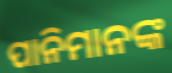
ପାନିମାନଙ୍କ